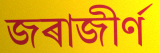
জৰাজীৰ্ণ